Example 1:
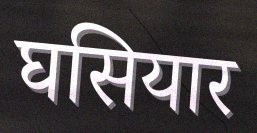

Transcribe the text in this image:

घसियार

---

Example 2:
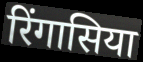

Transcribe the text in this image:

रिंगासिया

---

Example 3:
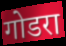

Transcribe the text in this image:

गोडरा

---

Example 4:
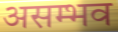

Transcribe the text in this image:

असम्भव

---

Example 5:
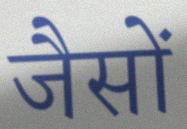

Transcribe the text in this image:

जैसों